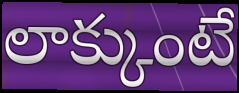
లాక్కుంటే